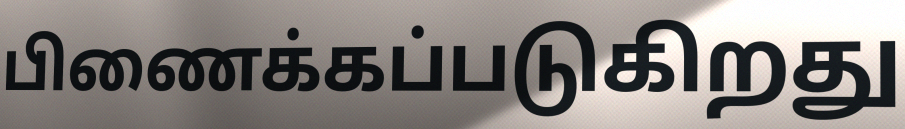
பிணைக்கப்படுகிறது